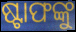
ଷ୍ଟାଫଙ୍କୁ